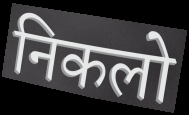
निकलो